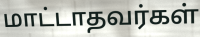
மாட்டாதவர்கள்